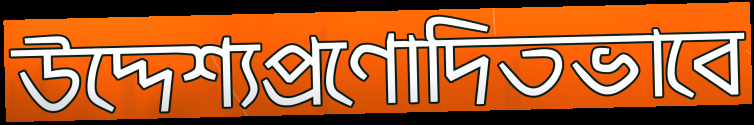
উদ্দেশ্যপ্রণোদিতভাবে